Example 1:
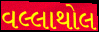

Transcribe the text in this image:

વલ્લાથોલ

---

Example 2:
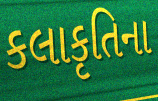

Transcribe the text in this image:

કલાકૃતિના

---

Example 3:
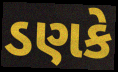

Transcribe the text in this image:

ડણકે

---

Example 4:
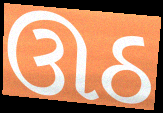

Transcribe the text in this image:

ઊઠ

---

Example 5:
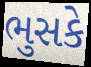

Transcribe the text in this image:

ભુસકે